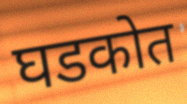
घडकोत